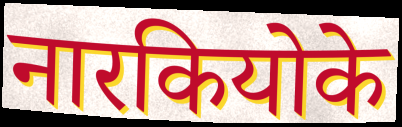
नारकियोके